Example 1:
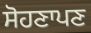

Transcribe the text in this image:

ਸੋਹਣਾਪਣ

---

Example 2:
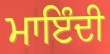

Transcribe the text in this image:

ਮਾਇੰਦੀ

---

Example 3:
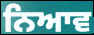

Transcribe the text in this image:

ਨਿਆਵ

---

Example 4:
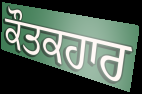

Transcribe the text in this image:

ਕੌਤਕਹਾਰ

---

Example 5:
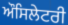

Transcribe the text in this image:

ਔਸਿਲੇਟਰੀ